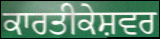
ਕਾਰਤੀਕੇਸ਼ਵਰ